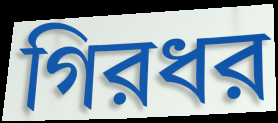
গিরধর